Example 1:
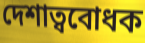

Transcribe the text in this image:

দেশাত্ববোধক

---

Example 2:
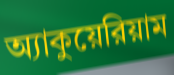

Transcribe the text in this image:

অ্যাকুয়েরিয়াম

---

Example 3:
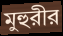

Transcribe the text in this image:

মুহুরীর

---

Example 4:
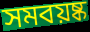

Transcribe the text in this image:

সমবয়ষ্ক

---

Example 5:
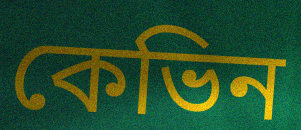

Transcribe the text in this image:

কেভিন